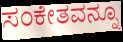
ಸಂಕೇತವನ್ನೂ